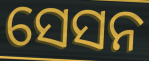
ସେସନ